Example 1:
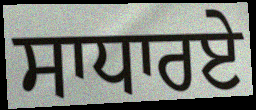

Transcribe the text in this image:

ਸਾਧਾਰਏ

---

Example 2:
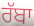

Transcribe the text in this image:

ਰੱਬਾ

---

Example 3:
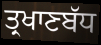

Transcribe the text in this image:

ਤ੍ਰਖਾਣਬੱਧ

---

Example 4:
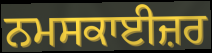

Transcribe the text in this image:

ਨਮਸਕਾਈਜ਼ਰ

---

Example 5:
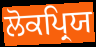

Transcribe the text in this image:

ਲੋਕਪ੍ਰਿਯ